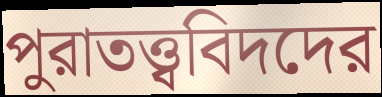
পুরাতত্ত্ববিদদের